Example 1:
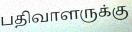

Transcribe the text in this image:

பதிவாளருக்கு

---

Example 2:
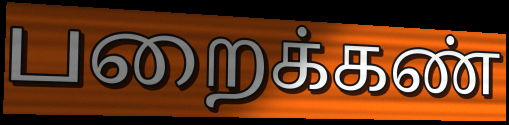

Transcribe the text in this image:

பறைக்கண்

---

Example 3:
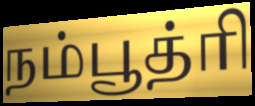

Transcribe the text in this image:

நம்பூத்ரி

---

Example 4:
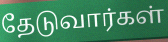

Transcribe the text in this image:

தேடுவார்கள்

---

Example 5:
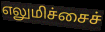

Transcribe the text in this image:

எலுமிச்சைச்